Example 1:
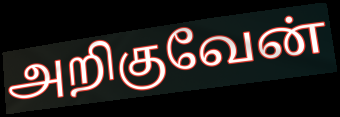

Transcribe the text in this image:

அறிகுவேன்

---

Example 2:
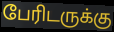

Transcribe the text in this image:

பேரிடருக்கு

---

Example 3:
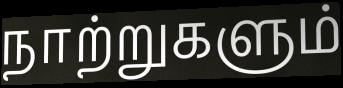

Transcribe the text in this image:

நாற்றுகளும்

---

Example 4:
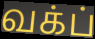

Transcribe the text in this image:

வக்ப்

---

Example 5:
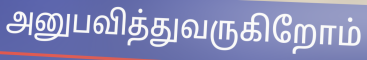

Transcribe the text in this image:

அனுபவித்துவருகிறோம்